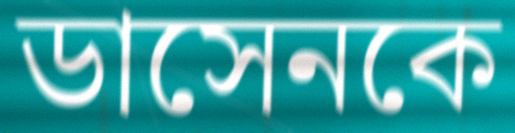
ডাসেনকে